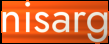
nisarg